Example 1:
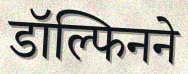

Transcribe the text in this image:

डॉल्फिनने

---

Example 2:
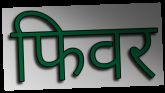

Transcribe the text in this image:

फिवर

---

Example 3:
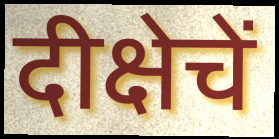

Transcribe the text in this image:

दीक्षेचें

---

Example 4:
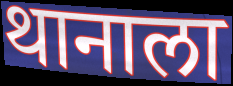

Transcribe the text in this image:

थानाला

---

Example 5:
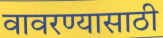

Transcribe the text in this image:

वावरण्यासाठी